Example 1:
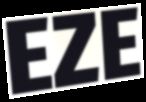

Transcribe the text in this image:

EZE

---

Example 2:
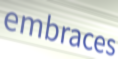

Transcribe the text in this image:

embraces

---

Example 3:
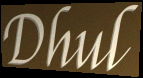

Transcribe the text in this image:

Dhul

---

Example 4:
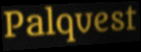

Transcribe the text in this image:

Palquest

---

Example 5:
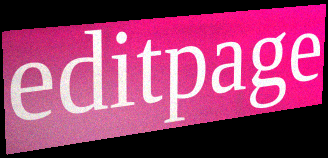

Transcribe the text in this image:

editpage